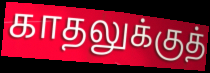
காதலுக்குத்